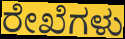
ರೇಖೆಗಳು